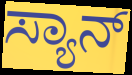
ಸ್ಯಾನ್